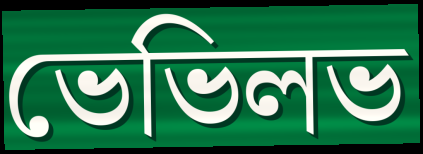
ভেভিলভ